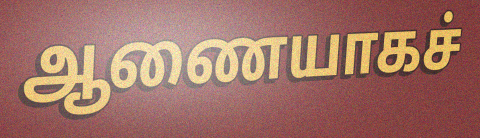
ஆணையாகச்